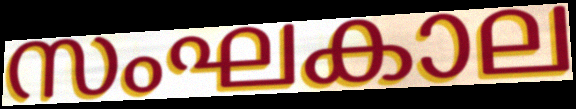
സംഘകാല